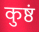
कुष्ठं